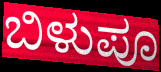
ಬಿಳುಪೂ